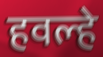
हवल्हे